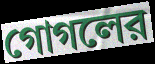
গোগলের